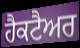
ਹੈਕਟੈਅਰ